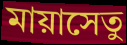
মায়াসেতু